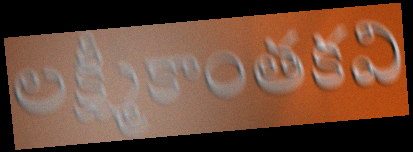
లక్ష్మీకాంతకవి